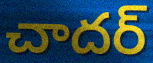
చాదర్